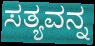
ಸತ್ಯವನ್ನ